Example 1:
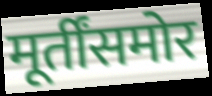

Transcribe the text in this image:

मूर्तींसमोर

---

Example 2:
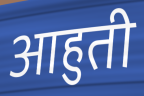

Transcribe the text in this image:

आहुती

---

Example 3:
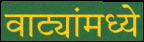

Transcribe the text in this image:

वाट्यांमध्ये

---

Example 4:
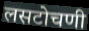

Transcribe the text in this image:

लसटोचणी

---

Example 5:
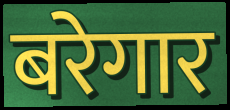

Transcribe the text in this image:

बरेगार